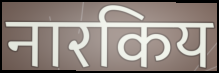
नारकिय